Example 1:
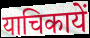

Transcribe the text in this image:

याचिकायें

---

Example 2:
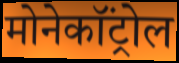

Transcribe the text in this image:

मोनेकॉंट्रोल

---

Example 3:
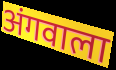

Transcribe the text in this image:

अंगवाला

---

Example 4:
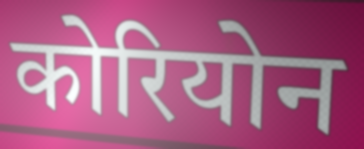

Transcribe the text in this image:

कोरियोन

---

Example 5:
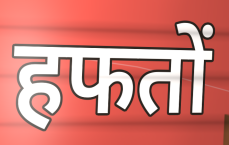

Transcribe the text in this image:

हफतों